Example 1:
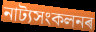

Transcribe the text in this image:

নাট্যসংকলনৰ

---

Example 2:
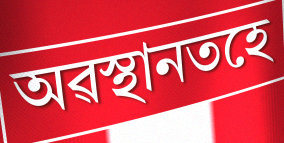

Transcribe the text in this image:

অৱস্থানতহে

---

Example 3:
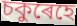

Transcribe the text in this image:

চকুৰেহে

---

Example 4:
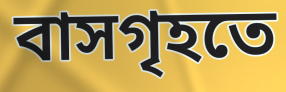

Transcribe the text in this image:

বাসগৃহতে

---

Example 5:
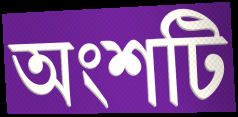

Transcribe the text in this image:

অংশটি